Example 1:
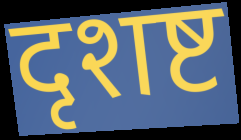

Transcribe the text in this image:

दृशष्ट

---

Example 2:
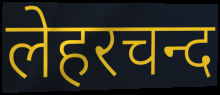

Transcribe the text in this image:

लेहरचन्द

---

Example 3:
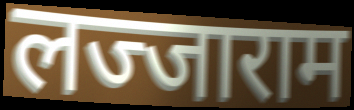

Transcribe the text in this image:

लज्जाराम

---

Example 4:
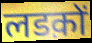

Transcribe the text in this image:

लडक़ों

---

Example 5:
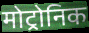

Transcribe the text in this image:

मोट्रोनिक